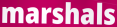
marshals